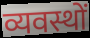
व्यवस्थों